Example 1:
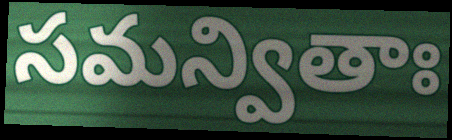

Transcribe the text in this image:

సమన్వితాః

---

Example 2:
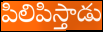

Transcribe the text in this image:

పిలిపిస్తాడు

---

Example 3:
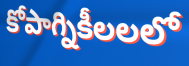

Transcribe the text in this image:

కోపాగ్నికీలలలో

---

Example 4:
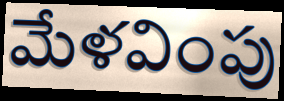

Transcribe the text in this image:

మేళవింపు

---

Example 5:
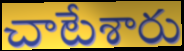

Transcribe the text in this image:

చాటేశారు